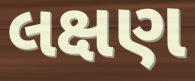
લક્ષણ